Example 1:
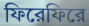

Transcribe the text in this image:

ফিরেফিরে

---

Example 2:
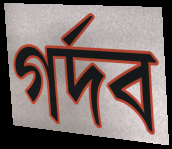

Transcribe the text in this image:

গর্দব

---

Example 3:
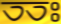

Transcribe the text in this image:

ততঃ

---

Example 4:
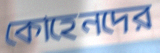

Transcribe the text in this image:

কোহেনদের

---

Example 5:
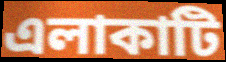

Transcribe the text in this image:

এলাকাটি